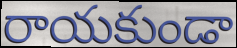
రాయకుండా